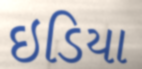
ઇડિયા